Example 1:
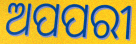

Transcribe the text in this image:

ଅପପରୀ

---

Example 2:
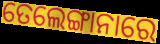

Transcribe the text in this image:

ତେଲେଙ୍ଗାନାରେ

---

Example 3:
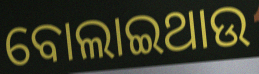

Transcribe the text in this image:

ବୋଲାଇଥାଉ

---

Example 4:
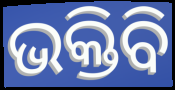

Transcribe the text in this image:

ଭକ୍ତିବି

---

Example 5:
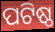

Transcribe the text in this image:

ପଟିଷ୍ଠ